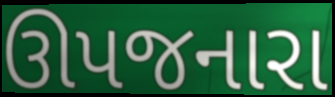
ઊપજનારા